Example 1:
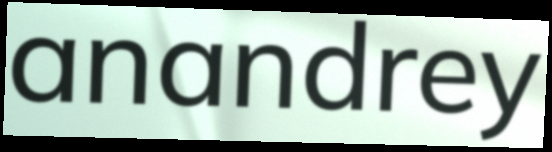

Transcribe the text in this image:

anandrey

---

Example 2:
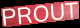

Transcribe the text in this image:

PROUT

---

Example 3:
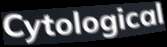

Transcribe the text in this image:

Cytological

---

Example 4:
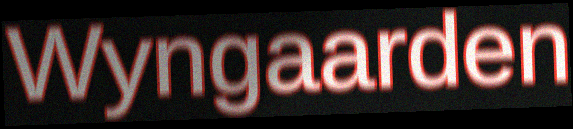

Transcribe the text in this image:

Wyngaarden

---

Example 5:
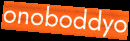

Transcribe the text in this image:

onoboddyo